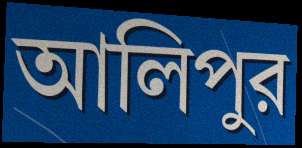
আলিপুর